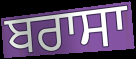
ਬਰਾਸਾ